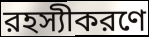
রহস্যীকরণে